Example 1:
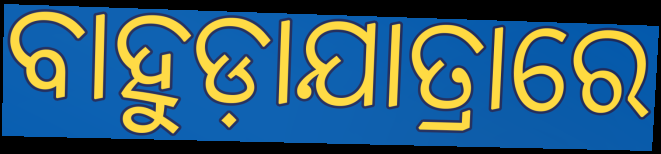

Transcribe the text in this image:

ବାହୁଡ଼ାଯାତ୍ରାରେ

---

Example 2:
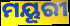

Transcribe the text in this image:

ମୟୂରୀ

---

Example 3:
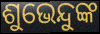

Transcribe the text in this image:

ଶୁଭେନ୍ଦୁଙ୍କ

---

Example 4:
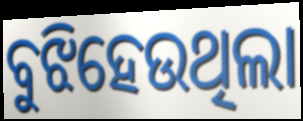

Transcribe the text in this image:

ବୁଝିହେଉଥିଲା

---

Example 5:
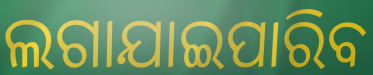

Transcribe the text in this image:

ଲଗାଯାଇପାରିବ